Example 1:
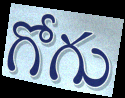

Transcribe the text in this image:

గోగు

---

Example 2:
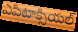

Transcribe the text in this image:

ఎపిటాక్సియల్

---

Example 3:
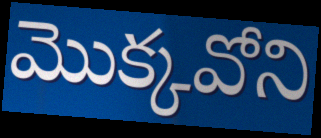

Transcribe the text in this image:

మొక్కవోని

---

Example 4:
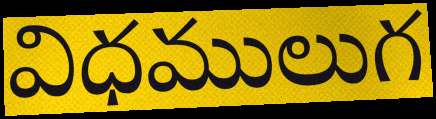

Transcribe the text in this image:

విధములుగ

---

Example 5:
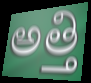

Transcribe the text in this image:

అత్తి